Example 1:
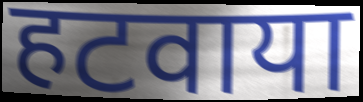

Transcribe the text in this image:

हटवाया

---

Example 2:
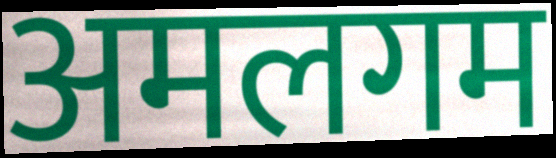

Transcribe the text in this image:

अमलगम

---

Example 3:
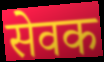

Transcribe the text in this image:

सेवक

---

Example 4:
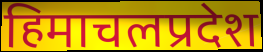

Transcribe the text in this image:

हिमाचलप्रदेश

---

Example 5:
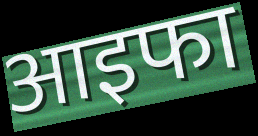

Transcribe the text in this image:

आइफा